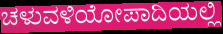
ಚಳುವಳಿಯೋಪಾದಿಯಲ್ಲಿ